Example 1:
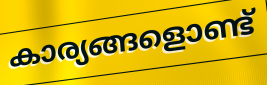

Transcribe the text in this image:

കാര്യങ്ങളൊണ്ട്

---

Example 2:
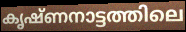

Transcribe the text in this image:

കൃഷ്ണനാട്ടത്തിലെ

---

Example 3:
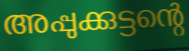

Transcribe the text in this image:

അപ്പുക്കുട്ടന്റെ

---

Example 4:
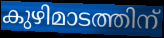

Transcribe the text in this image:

കുഴിമാടത്തിന്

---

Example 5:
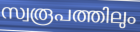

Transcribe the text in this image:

സ്വരൂപത്തിലും